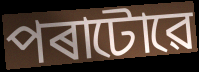
পৰাটোৱে